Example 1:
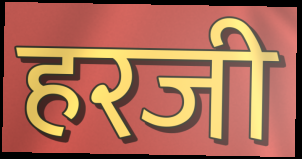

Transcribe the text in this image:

हरजी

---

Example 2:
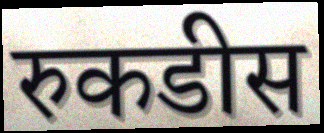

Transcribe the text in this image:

रुकडीस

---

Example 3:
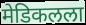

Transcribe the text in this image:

मेडिकलला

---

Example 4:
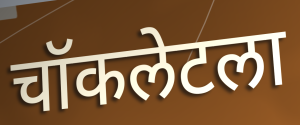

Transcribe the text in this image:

चॉकलेटला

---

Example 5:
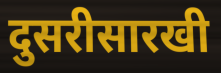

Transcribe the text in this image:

दुसरीसारखी